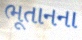
ભૂતાનના